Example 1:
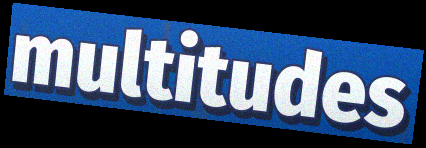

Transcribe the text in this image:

multitudes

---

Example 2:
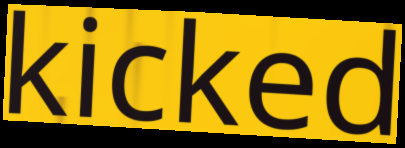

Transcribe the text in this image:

kicked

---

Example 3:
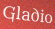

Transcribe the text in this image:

Gladio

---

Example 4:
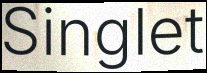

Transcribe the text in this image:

Singlet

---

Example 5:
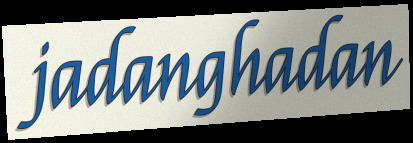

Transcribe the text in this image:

jadanghadan